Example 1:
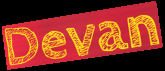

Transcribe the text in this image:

Devan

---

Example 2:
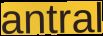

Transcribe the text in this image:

antral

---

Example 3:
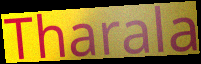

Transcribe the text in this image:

Tharala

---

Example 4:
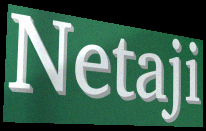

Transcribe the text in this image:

Netaji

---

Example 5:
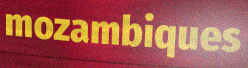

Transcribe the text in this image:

mozambiques